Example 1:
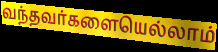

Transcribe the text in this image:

வந்தவர்களையெல்லாம்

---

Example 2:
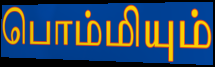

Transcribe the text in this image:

பொம்மியும்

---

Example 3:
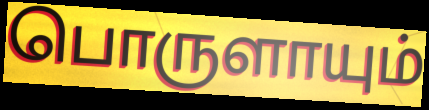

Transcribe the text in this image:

பொருளாயும்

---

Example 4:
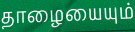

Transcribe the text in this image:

தாழையையும்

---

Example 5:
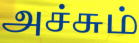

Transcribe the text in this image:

அச்சும்